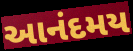
આનંદમય